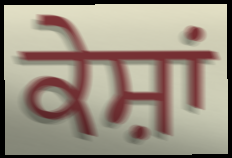
ਕੇਸ਼ਾਂ